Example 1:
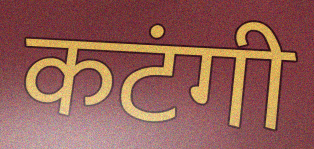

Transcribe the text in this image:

कटंगी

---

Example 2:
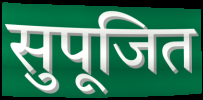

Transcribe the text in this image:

सुपूजित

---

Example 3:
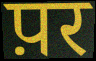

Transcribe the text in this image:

प़र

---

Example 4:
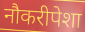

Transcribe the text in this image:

नौकरीपेशा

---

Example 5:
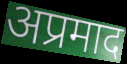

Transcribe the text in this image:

अप्रमाद